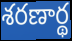
శరణార్థ